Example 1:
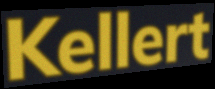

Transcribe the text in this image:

Kellert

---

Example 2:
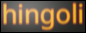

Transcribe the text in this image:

hingoli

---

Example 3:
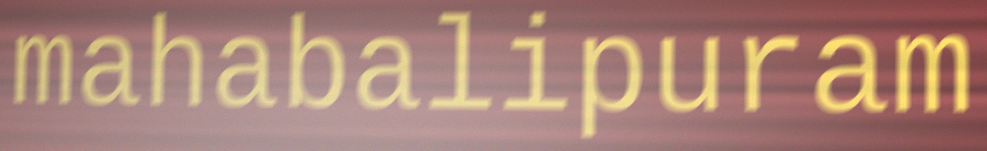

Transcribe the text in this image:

mahabalipuram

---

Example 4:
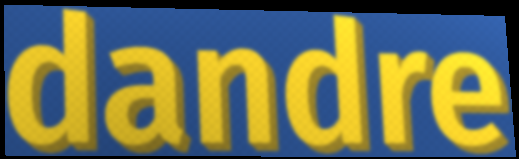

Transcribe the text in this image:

dandre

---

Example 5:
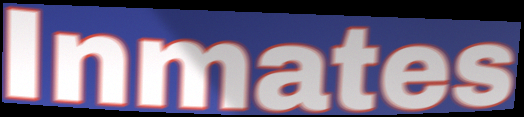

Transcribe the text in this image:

Inmates